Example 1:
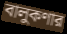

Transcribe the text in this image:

বালুকণার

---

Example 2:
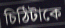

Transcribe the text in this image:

চিঠিটাকে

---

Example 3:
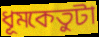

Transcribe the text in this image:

ধূমকেতুটা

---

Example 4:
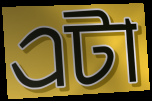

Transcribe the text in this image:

এটা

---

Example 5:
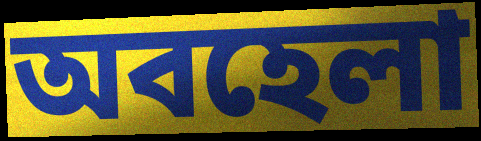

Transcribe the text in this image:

অবহেলা